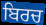
ਬਿਰਚ